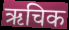
ऋचिक